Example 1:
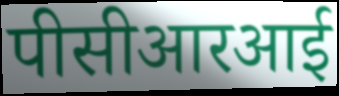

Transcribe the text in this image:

पीसीआरआई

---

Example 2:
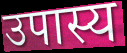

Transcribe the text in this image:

उपास्य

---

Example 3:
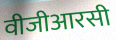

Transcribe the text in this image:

वीजीआरसी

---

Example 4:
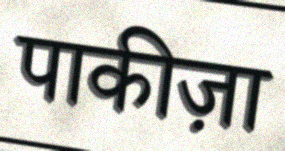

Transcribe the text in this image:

पाकीज़ा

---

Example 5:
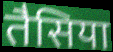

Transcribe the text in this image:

तैसिया